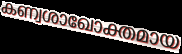
കണ്വശാഖോക്തമായ